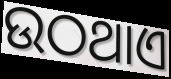
ଉଠଥାଏ